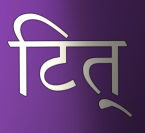
टित्